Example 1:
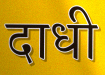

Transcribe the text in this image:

दाधी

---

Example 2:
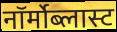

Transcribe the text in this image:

नॉर्मोब्लास्ट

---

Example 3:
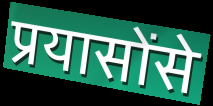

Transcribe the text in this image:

प्रयासोंसे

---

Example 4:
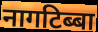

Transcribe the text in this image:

नागटिब्बा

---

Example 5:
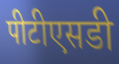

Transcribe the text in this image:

पीटीएसडी